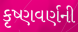
કૃષ્ણવર્ણની